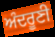
ਅੰਦਰੂਣੀ